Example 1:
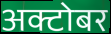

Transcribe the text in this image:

अक्टोबर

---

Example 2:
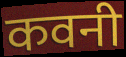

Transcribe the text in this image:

कवनी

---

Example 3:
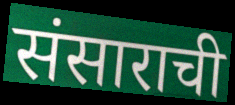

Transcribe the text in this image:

संसाराची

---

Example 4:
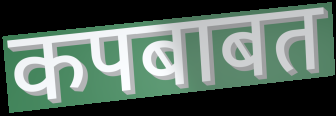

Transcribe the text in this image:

कपबाबत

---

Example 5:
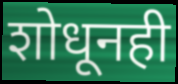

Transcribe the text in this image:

शोधूनही